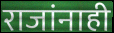
राजांनाही